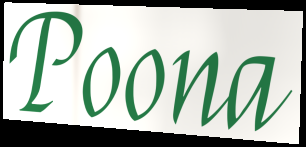
Poona